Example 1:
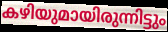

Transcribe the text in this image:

കഴിയുമായിരുന്നിട്ടും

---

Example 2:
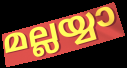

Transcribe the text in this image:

മല്ലയ്യാ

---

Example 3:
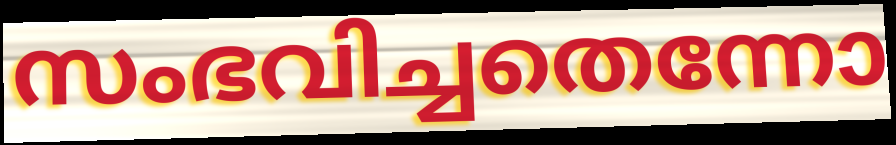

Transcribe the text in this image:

സംഭവിച്ചതെന്നോ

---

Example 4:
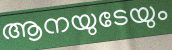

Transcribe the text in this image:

ആനയുടേയും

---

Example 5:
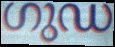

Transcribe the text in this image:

ഗുഡ